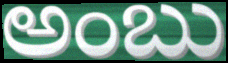
అంబు